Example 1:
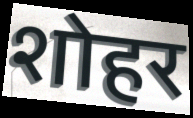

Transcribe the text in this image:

शोहर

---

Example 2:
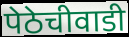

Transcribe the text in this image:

पेठेचीवाडी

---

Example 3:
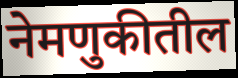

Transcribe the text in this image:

नेमणुकीतील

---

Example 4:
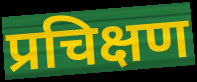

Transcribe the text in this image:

प्रचिक्षण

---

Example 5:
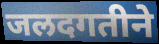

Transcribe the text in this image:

जलदगतीने